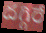
దగ్గిరే